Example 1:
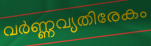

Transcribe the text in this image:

വർണ്ണവ്യതിരേകം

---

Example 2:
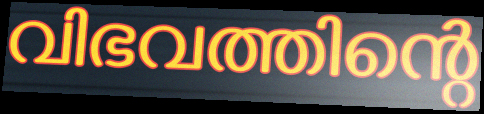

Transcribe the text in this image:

വിഭവത്തിന്റെ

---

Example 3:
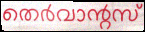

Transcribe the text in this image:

തെർവാന്റസ്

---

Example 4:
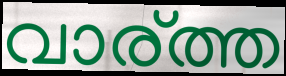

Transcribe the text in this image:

വാര്ത്ത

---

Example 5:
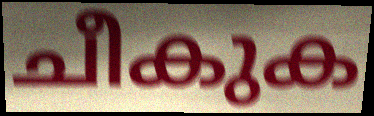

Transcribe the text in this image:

ചീകുക